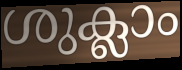
ശുക്ലാം